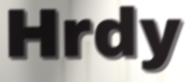
Hrdy